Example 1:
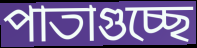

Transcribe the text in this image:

পাতাগুচ্ছে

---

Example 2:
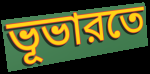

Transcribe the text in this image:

ভূভারতে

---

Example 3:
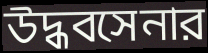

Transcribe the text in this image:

উদ্ধবসেনার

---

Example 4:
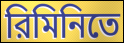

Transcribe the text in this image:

রিমিনিতে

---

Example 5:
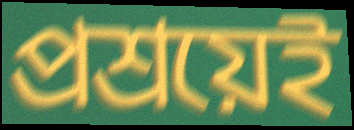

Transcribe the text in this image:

প্রশ্রয়েই